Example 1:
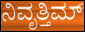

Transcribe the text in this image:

ನಿವೃತ್ತಿಮ್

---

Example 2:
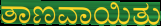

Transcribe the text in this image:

ತಾಣವಾಯಿತು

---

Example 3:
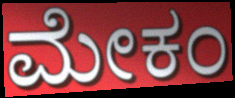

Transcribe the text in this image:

ಮೇಕಂ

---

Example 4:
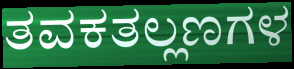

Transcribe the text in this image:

ತವಕತಲ್ಲಣಗಳ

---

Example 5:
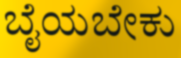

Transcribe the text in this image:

ಬೈಯಬೇಕು